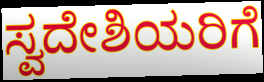
ಸ್ವದೇಶಿಯರಿಗೆ